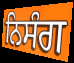
ਨਿਸੰਗ